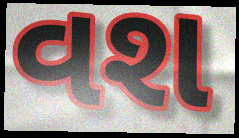
વશ